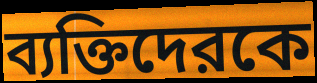
ব্যক্তিদেরকে